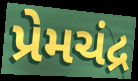
પ્રેમચંદ્ર